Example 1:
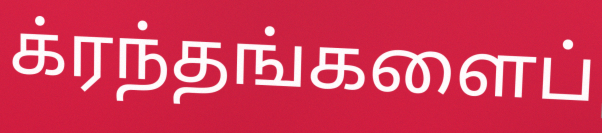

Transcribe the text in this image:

க்ரந்தங்களைப்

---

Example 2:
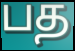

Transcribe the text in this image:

பத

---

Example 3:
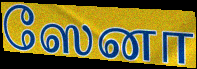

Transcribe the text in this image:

ஸேனா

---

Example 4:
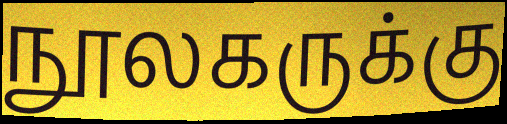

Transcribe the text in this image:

நூலகருக்கு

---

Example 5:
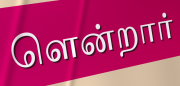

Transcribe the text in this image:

ளென்றார்